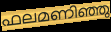
ഫലമണിഞ്ഞു